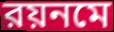
রয়নমে